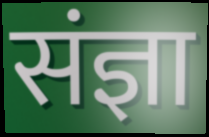
संज्ञा